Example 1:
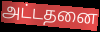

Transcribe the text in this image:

அட்டதனை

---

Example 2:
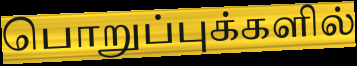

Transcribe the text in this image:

பொறுப்புக்களில்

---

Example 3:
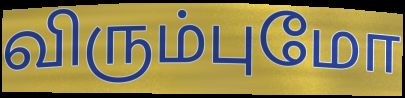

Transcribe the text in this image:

விரும்புமோ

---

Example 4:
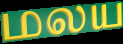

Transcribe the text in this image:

மலய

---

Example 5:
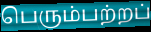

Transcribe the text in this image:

பெரும்பற்றப்